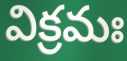
విక్రమః